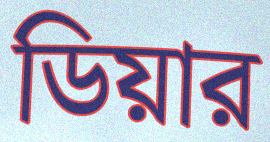
ডিয়ার